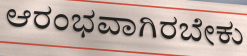
ಆರಂಭವಾಗಿರಬೇಕು